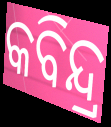
କବିନ୍ଦ୍ର